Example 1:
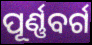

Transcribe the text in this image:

ପୂର୍ଣ୍ଣବର୍ଗ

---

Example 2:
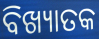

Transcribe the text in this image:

ବିଖ୍ୟାତକ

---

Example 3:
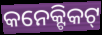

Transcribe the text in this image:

କନେକ୍ଟିକଟ୍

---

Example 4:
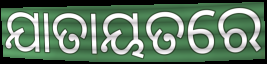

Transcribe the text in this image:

ଯାତାୟତରେ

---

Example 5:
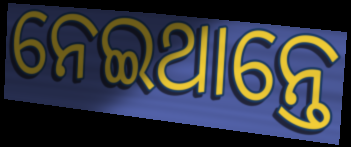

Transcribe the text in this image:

ନେଇଥାନ୍ତେ